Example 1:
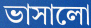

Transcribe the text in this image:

ভাসালো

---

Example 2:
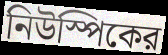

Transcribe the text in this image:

নিউস্পিকের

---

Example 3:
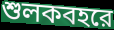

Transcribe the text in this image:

শুলকবহরে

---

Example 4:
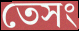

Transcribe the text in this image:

তেসং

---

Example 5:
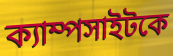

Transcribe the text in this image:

ক্যাম্পসাইটকে